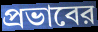
প্রভাবের